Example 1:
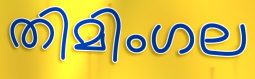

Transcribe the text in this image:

തിമിംഗല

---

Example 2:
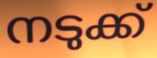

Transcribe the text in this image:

നടുക്ക്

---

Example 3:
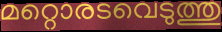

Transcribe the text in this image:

മറ്റൊരടവെടുത്തു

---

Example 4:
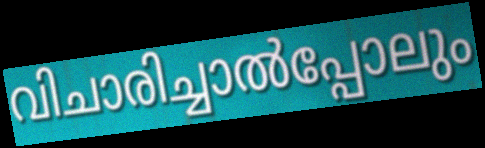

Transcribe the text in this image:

വിചാരിച്ചാൽപ്പോലും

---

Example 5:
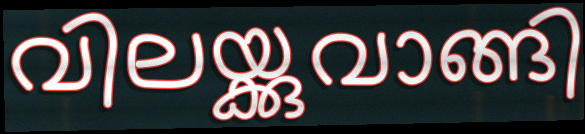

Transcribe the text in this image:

വിലയ്ക്കുവാങ്ങി